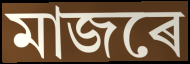
মাজৰে